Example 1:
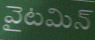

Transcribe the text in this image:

వైటమిన్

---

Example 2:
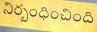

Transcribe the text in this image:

నిర్బంధించింది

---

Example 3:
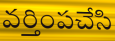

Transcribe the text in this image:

వర్తింపచేసి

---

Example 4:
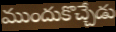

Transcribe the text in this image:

ముందుకొచ్చేడు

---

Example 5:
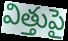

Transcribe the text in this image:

విత్తుపై